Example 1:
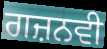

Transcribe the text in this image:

ਗਜ਼ਨਵੀ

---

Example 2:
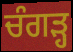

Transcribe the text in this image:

ਚੰਗੜ੍ਹ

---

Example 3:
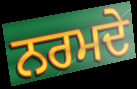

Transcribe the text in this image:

ਨਰਮਦੇ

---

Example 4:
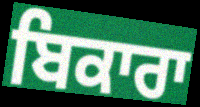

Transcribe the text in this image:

ਬਿਕਾਰਾ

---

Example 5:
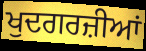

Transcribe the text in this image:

ਖੁਦਗਰਜ਼ੀਆਂ